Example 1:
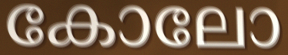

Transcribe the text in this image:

കോലോ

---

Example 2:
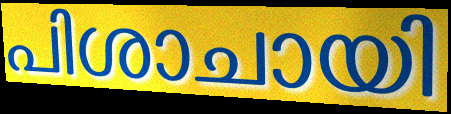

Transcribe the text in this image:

പിശാചായി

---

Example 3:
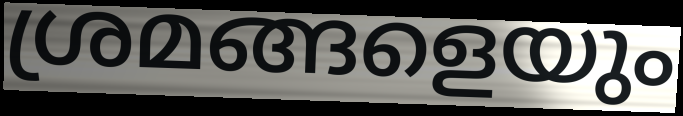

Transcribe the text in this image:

ശ്രമങ്ങളെയും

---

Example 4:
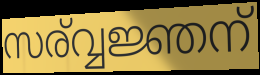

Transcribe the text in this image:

സര്വ്വജ്ഞന്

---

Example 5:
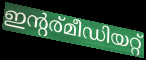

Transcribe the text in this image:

ഇന്റര്മീഡിയറ്റ്